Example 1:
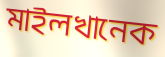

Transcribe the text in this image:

মাইলখানেক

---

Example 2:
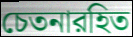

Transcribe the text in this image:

চেতনারহিত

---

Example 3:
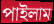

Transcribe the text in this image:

পাইলাম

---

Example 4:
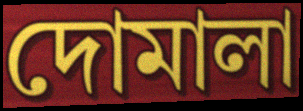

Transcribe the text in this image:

দোমালা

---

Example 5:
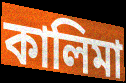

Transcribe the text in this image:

কালিমা